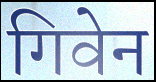
गिवेन